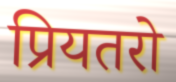
प्रियतरो